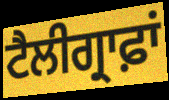
ਟੈਲੀਗ੍ਰਾਫ਼ਾਂ